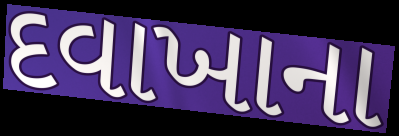
દવાખાના